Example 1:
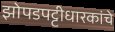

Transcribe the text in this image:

झोपडपट्टीधारकांचे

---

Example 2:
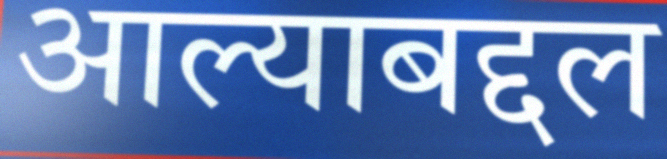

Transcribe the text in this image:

आल्याबद्दल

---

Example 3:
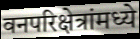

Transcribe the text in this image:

वनपरिक्षेत्रांमध्ये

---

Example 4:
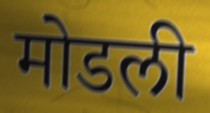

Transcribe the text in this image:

मोडली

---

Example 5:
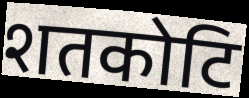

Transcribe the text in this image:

शतकोटि